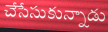
చేసేసుకున్నాడు